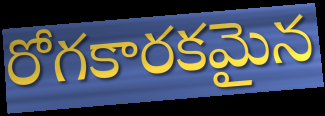
రోగకారకమైన